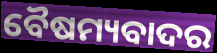
ବୈଷମ୍ୟବାଦର